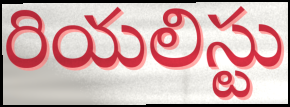
రియలిస్టు